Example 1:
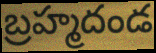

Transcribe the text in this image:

బ్రహ్మదండ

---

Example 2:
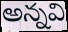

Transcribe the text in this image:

అన్నవి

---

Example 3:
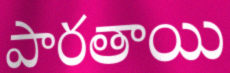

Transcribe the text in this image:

పారతాయి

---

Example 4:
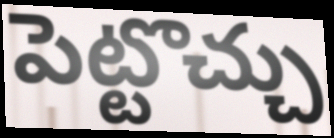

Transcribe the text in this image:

పెట్టొచ్చు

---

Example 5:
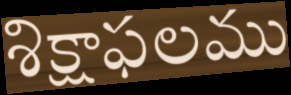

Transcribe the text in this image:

శిక్షాఫలము